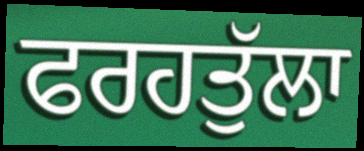
ਫਰਹਤੁੱਲਾ